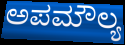
ಅಪಮೌಲ್ಯ